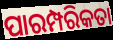
ପାରମ୍ପରିକତା